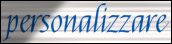
personalizzare